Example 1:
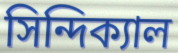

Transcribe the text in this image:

সিন্দিক্যাল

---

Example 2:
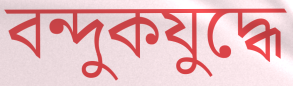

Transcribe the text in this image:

বন্দুকযুদ্ধে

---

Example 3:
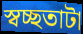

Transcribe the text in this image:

স্বচ্ছতাটা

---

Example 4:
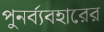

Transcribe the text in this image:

পুনর্ব্যবহারের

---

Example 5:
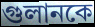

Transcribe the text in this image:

গুলানকে